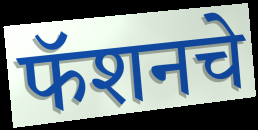
फॅशनचे